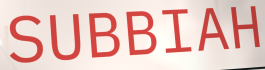
SUBBIAH